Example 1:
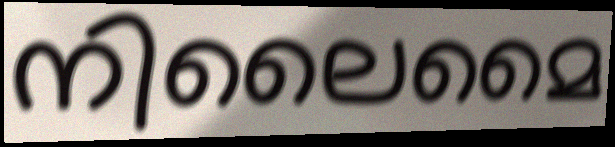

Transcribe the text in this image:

നിലൈമൈ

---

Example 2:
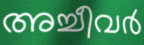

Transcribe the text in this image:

അച്ചീവർ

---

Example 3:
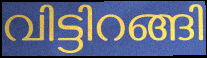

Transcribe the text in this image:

വിട്ടിറങ്ങി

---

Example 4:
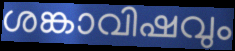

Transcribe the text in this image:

ശങ്കാവിഷവും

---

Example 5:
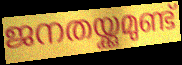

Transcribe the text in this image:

ജനതയ്ക്കുമുണ്ട്